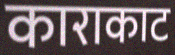
काराकाट